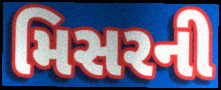
મિસરની